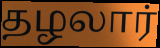
தழலார்